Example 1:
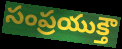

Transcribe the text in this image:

సంప్రయుక్తౌ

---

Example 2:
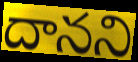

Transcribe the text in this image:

దానని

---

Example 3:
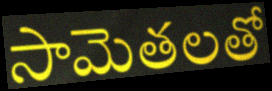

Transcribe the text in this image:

సామెతలతో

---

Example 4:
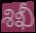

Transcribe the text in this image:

శిఖీ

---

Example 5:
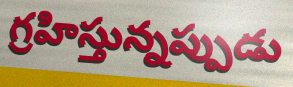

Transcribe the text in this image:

గ్రహిస్తున్నప్పుడు